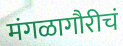
मंगळागौरीचं